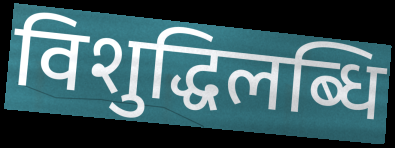
विशुद्धिलब्धि